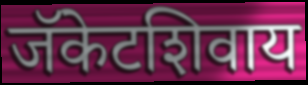
जॅकेटशिवाय